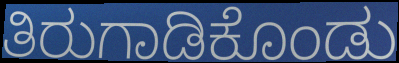
ತಿರುಗಾಡಿಕೊಂಡು